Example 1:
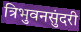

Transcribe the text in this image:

त्रिभुवनसुंदरी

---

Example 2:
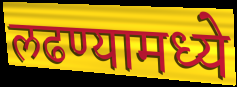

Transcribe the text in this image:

लढण्यामध्ये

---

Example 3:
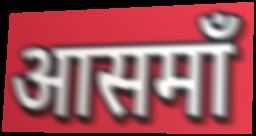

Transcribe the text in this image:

आसमाँ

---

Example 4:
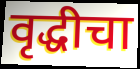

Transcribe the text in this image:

वृद्धीचा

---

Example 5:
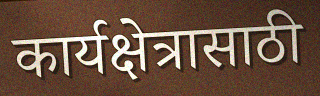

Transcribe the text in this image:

कार्यक्षेत्रासाठी